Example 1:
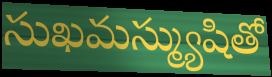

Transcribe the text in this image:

సుఖమస్మ్యుషితో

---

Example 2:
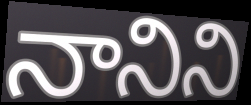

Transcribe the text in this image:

నానిని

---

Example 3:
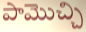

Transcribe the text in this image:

పామొచ్చి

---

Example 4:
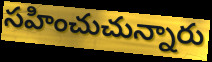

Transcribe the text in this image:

సహించుచున్నారు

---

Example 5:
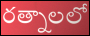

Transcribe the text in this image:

రత్నాలలో